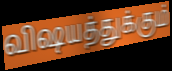
விஷயத்துக்கும்